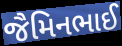
જૈમિનભાઈ